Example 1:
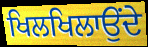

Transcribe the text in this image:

ਖਿਲਖਿਲਾਉਂਦੇ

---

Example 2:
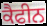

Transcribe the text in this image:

ਕੈਫੀਨ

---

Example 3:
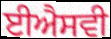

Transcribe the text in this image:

ਈਐਸਵੀ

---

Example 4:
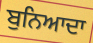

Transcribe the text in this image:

ਬੁਨਿਆਦਾ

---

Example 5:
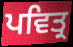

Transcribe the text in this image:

ਪਵਿਤ੍ਰ